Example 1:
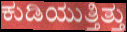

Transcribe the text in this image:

ಕುಡಿಯುತ್ತಿತ್ತು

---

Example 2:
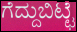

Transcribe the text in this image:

ಗೆದ್ದುಬಿಟ್ಟೆ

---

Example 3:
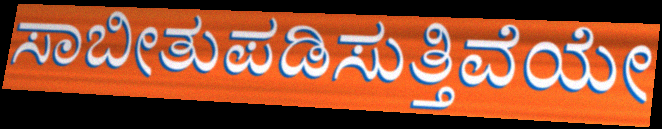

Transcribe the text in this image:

ಸಾಬೀತುಪಡಿಸುತ್ತಿವೆಯೇ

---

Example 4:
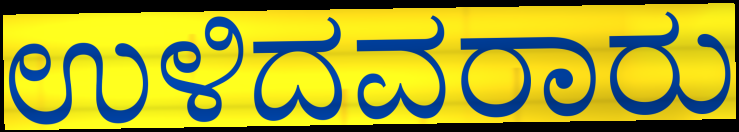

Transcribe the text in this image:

ಉಳಿದವರಾರು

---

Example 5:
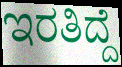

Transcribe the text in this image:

ಇರತಿದ್ದೆ